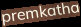
premkatha